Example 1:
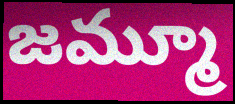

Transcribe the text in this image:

జమ్మూ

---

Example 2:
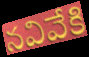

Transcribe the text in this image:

నవివేకి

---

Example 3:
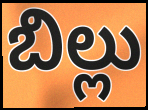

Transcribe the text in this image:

బిల్లు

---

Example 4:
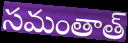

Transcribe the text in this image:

సమంతాత్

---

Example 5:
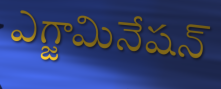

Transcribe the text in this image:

ఎగ్జామినేషన్